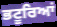
ਭਟੂਰਿਆਂ